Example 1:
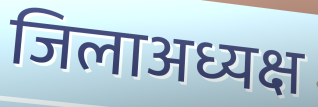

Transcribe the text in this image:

जिलाअध्यक्ष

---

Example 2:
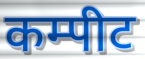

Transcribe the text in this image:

कम्पीट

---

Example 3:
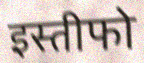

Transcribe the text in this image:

इस्तीफो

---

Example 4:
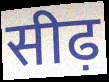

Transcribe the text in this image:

सीढ़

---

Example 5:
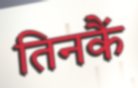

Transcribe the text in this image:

तिनकैं